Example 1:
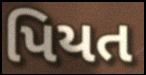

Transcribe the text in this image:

પિયત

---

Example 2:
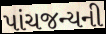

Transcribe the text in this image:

પાંચજન્યની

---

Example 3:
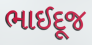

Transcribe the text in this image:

ભાઈદૂજ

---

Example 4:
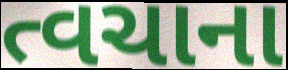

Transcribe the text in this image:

ત્વચાના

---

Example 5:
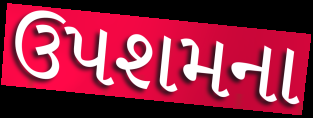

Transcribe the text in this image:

ઉપશમના